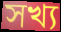
সখ্য